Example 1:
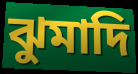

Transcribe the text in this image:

ঝুমাদি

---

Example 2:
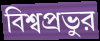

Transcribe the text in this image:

বিশ্বপ্রভুর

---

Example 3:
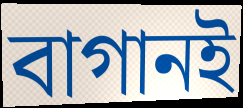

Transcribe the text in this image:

বাগানই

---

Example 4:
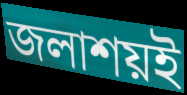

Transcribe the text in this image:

জলাশয়ই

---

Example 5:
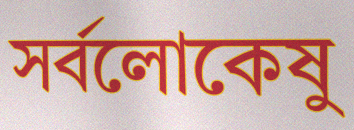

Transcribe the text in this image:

সর্বলোকেষু